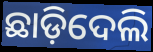
ଛାଡ଼ିଦେଲି